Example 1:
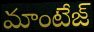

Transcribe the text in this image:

మాంటేజ్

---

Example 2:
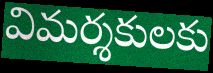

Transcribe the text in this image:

విమర్శకులకు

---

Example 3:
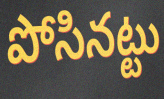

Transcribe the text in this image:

పోసినట్టు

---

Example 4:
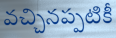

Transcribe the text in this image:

వచ్చినప్పటికీ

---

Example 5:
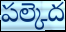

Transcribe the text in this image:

పల్కెద